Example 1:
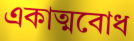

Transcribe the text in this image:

একাত্মবোধ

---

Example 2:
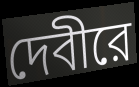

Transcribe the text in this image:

দেবীরে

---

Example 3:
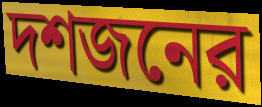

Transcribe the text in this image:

দশজনের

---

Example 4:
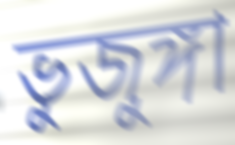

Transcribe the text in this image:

ভুজুঙ্গা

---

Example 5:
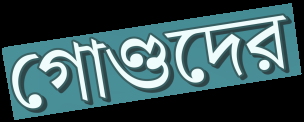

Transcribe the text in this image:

গোণ্ডদের